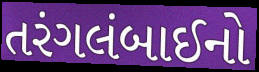
તરંગલંબાઈનો